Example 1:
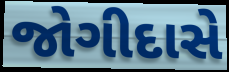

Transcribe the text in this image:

જોગીદાસે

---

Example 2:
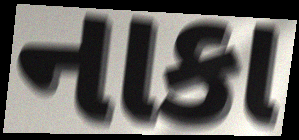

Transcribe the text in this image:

નાકા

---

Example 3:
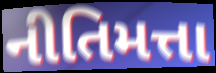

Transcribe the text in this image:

નીતિમત્તા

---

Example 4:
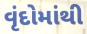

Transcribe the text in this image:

વૃંદોમાંથી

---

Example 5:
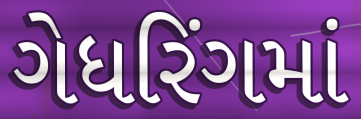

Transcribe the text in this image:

ગેધરિંગમાં